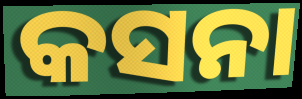
କସନା